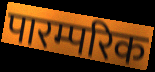
पारम्परिक